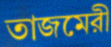
তাজমেরী